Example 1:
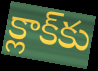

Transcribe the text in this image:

క్లాక్‌కు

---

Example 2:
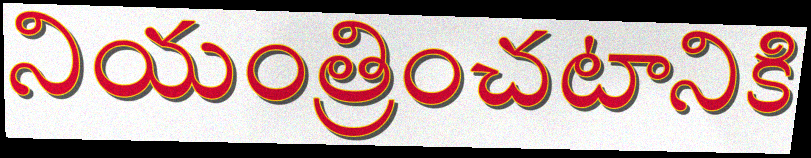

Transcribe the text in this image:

నియంత్రించటానికి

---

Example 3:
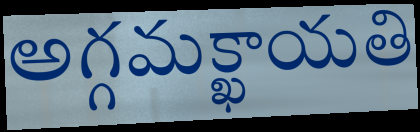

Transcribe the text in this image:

అగ్గమక్ఖాయతి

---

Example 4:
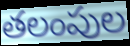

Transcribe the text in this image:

తలంపుల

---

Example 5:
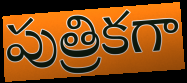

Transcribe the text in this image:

పుత్రికగా